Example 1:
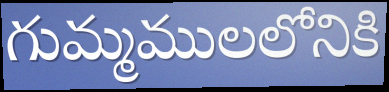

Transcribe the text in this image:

గుమ్మములలోనికి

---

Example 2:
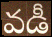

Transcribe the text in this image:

వడీ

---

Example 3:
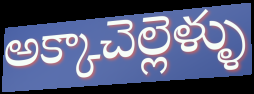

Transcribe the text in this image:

అక్కాచెల్లెళ్ళు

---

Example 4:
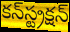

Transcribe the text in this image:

కన్‍స్ట్రక్షన్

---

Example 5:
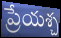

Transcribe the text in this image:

ప్రేయశ్చ